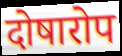
दोषारोप